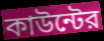
কাউন্টের